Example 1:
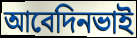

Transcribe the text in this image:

আবেদিনভাই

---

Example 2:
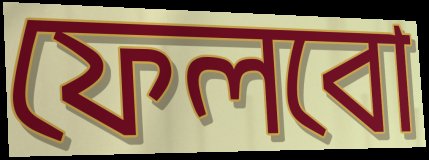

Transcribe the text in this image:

ফেলবো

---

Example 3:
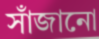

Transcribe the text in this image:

সাঁজানো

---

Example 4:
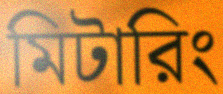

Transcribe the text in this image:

মিটারিং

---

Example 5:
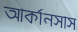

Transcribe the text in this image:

আর্কানসাস